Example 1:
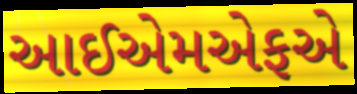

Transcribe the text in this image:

આઈએમએફએ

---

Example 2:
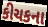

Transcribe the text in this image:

કીચકના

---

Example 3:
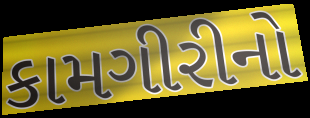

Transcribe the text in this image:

કામગીરીનો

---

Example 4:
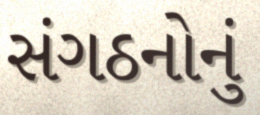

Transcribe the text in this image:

સંગઠનોનું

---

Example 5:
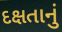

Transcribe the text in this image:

દક્ષતાનું